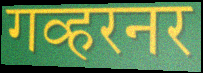
गव्हरनर